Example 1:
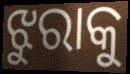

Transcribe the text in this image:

ଝୁରାକୁ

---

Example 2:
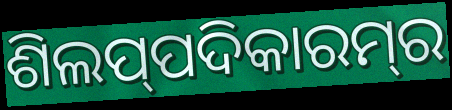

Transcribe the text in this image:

ଶିଲପ୍‍ପଦିକାରମ୍‍ର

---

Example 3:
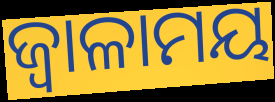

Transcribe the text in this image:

ଜ୍ୱାଳାମୟ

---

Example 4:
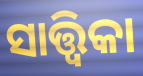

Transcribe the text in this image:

ସାତ୍ତ୍ୱିକା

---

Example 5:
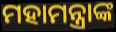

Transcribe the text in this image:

ମହାମନ୍ତ୍ରାଙ୍କ